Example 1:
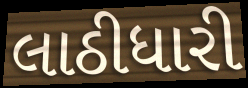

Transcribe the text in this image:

લાઠીધારી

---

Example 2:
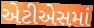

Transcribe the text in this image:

એટીએસમાં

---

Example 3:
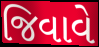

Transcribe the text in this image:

જિવાવે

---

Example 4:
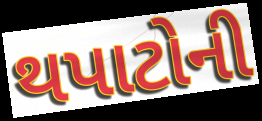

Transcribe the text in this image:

થપાટોની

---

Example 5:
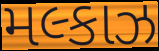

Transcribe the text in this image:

મલ્કાઝ